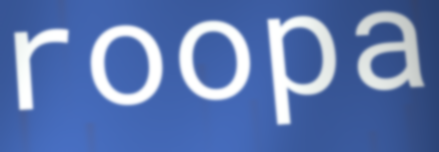
roopa